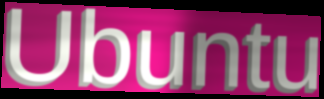
Ubuntu